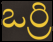
ఒర్రి